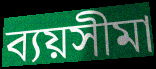
ব্যয়সীমা